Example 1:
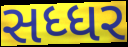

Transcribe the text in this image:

સધ્ધર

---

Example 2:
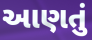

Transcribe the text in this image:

આણતું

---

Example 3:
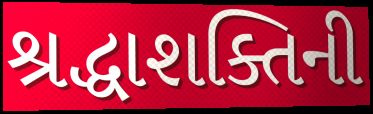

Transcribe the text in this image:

શ્રદ્ધાશક્તિની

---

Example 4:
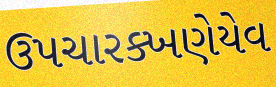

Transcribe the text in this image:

ઉપચારક્ખણેયેવ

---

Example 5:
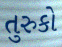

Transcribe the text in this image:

તુરુકો